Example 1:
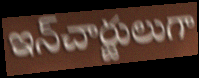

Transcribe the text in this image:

ఇన్‌చార్జులుగా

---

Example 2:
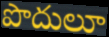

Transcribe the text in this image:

పొదులూ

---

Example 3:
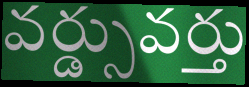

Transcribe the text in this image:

వర్డ్సువర్తు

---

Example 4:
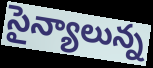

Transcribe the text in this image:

సైన్యాలున్న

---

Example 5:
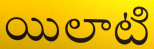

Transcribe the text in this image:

యిలాటి